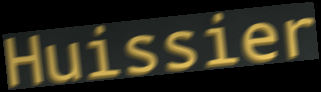
Huissier